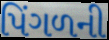
પિંગળની